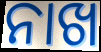
ନାଖ